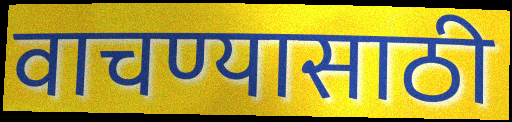
वाचण्यासाठी